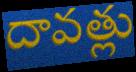
దావత్లు